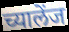
च्यालेंज